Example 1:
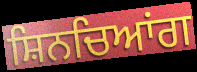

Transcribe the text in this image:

ਸ਼ਿਨਚਿਆਂਗ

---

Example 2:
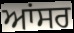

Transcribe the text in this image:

ਆਂਸਰ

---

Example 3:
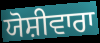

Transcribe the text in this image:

ਯੋਸ਼ੀਵਾਰਾ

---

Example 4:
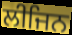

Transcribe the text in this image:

ਲੀਜਿਨ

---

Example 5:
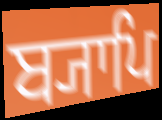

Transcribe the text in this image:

ਬ੍ਯਾਪਿ